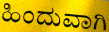
ಹಿಂದುವಾಗಿ